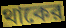
থাকের